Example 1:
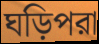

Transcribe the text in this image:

ঘড়িপরা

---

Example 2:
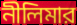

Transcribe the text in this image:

নীলিমার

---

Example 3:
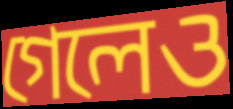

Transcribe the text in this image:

গেলেও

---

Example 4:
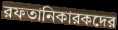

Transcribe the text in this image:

রফতানিকারকদের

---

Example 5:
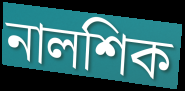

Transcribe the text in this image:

নালশিক